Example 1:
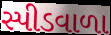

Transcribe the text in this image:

સ્પીડવાળા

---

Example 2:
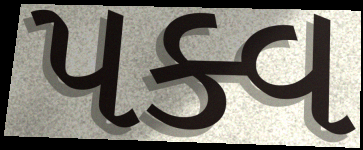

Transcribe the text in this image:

પક્વ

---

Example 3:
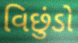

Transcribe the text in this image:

વિછુંડો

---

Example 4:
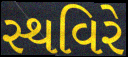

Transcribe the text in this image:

સ્થવિરે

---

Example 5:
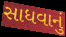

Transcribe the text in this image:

સાધવાનું